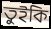
তুইকি